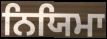
ਨਿਯਿਮਾ